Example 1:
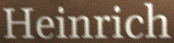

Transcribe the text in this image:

Heinrich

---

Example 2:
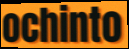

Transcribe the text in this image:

ochinto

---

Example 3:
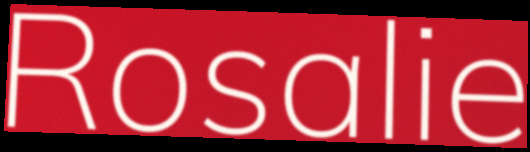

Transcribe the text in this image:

Rosalie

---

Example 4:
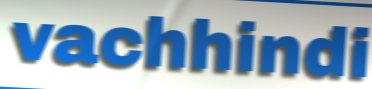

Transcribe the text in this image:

vachhindi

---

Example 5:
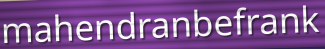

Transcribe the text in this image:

mahendranbefrank